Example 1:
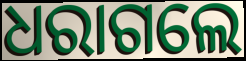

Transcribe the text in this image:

ଧରାଗଲେ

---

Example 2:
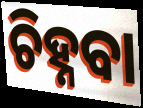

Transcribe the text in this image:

ଚିହ୍ନବା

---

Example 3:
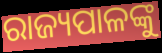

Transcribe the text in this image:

ରାଜ୍ୟପାଳଙ୍କୁ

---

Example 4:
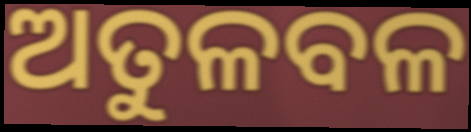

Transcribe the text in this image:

ଅତୁଳବଳ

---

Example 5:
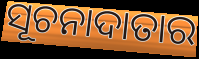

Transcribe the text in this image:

ସୂଚନାଦାତାର